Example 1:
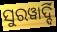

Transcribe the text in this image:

ସୁରୱାର୍ଦ୍ଦି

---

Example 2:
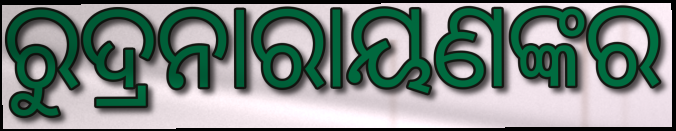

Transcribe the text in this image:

ରୁଦ୍ରନାରାୟଣଙ୍କର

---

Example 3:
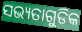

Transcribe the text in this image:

ସଭ୍ୟତାଗୁଡିକ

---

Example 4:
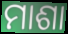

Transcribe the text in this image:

ମାଶା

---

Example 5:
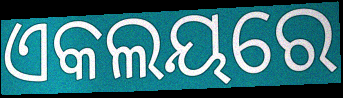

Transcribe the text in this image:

ଏକଲୟରେ